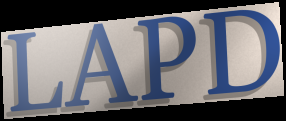
LAPD